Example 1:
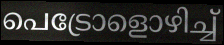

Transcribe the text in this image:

പെട്രോളൊഴിച്ച്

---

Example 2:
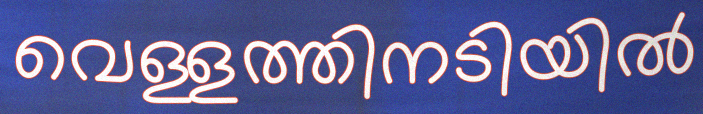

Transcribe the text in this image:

വെള്ളത്തിനടിയിൽ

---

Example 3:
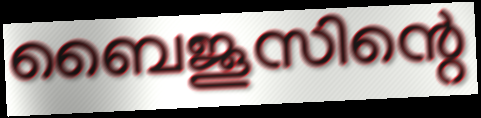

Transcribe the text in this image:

ബൈജൂസിന്റെ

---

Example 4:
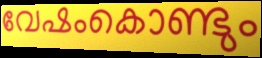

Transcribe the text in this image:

വേഷംകൊണ്ടും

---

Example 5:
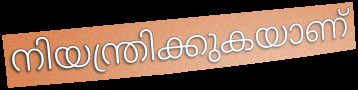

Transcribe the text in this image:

നിയന്ത്രിക്കുകയാണ്